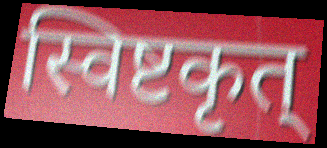
स्विष्टकृत्